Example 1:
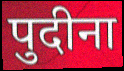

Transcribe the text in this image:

पुदीना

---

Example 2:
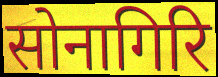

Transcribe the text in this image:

सोनागिरि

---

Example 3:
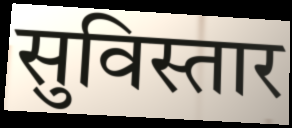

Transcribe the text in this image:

सुविस्तार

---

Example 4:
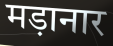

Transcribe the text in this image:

मड़ानार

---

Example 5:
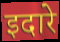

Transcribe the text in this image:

इदारे